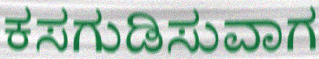
ಕಸಗುಡಿಸುವಾಗ